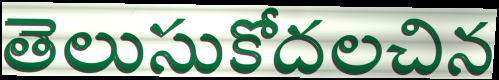
తెలుసుకోదలచిన